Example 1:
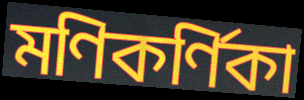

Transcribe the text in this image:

মণিকর্ণিকা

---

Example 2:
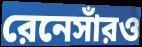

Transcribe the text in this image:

রেনেসাঁরও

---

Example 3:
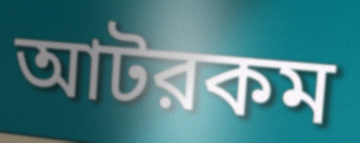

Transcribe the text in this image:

আটরকম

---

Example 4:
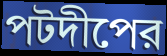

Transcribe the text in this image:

পটদীপের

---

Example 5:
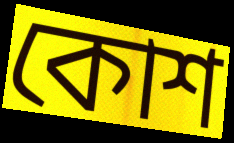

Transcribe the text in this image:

কোশ